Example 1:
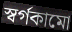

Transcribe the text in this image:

স্বর্গকামো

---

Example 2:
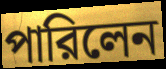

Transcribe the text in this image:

পারিলেন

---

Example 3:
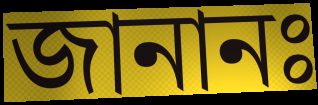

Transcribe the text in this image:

জানানঃ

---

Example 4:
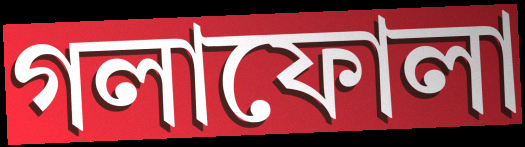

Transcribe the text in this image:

গলাফোলা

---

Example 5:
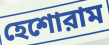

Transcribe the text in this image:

হেশোরাম